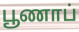
பூணாப்